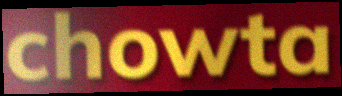
chowta